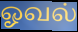
ஓவல்